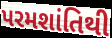
પરમશાંતિથી